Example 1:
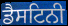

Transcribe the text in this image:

ਡੈਸਟਿਨੀ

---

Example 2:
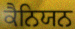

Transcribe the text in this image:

ਕੈਨਿਯਨ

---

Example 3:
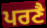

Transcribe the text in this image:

ਪਰਣੈ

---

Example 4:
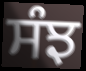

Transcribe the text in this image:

ਸੰਝ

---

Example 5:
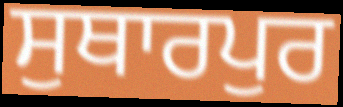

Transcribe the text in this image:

ਸੁਥਾਰਪੁਰ